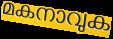
മകനാവുക